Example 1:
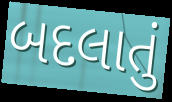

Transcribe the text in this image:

બદલાતું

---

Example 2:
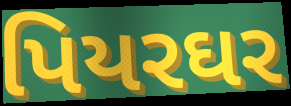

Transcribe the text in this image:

પિયરઘર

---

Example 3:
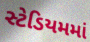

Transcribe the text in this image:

સ્ટેડિયમમાં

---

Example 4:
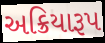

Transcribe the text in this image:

અક્રિયારૂપ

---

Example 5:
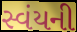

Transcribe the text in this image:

સ્વંયની